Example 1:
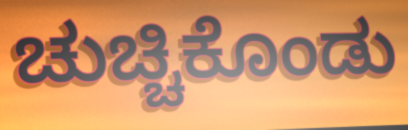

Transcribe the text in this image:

ಚುಚ್ಚಿಕೊಂಡು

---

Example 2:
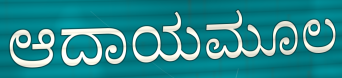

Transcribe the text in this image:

ಆದಾಯಮೂಲ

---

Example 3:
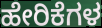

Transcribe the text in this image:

ಹೇರಿಕೆಗಳ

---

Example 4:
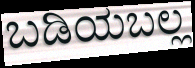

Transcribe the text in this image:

ಬಡಿಯಬಲ್ಲ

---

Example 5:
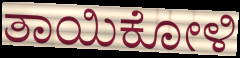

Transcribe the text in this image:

ತಾಯಿಕೋಳಿ